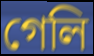
গেলি